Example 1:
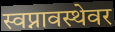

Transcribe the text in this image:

स्वप्नावस्थेवर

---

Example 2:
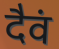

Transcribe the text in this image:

दैवं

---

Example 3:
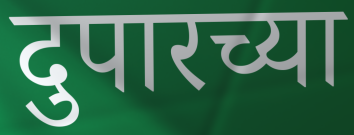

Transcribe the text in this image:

दुपारच्या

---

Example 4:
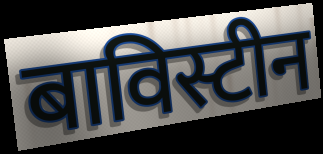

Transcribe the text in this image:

बाविस्टीन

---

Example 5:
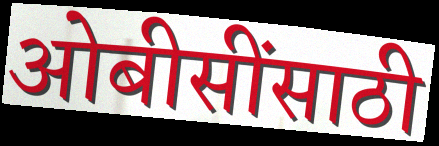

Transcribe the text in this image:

ओबीसींसाठी